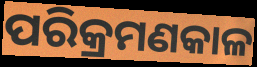
ପରିକ୍ରମଣକାଳ